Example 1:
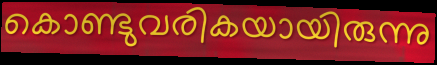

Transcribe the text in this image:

കൊണ്ടുവരികയായിരുന്നു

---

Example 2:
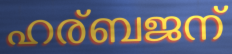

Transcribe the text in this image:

ഹര്ബജന്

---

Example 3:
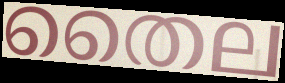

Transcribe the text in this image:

തൈല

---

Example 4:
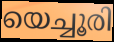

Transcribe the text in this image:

യെച്ചൂരി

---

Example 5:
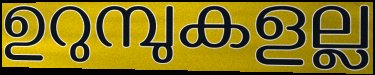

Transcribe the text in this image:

ഉറുമ്പുകളല്ല